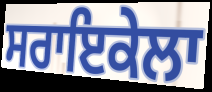
ਸਰਾਇਕੇਲਾ